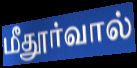
மீதூர்வால்